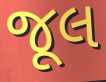
જૂલ